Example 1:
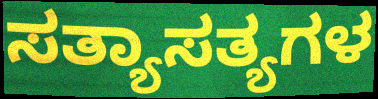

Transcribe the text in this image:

ಸತ್ಯಾಸತ್ಯಗಳ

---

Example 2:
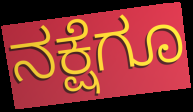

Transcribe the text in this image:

ನಕ್ಷೆಗೂ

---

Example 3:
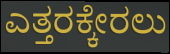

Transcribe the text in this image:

ಎತ್ತರಕ್ಕೇರಲು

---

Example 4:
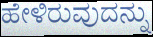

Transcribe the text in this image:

ಹೇಳಿರುವುದನ್ನು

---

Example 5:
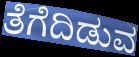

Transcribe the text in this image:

ತೆಗೆದಿಡುವ